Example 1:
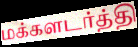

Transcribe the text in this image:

மக்களடர்த்தி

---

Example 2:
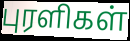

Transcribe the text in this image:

புரளிகள்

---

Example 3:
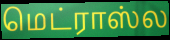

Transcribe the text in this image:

மெட்ராஸ்ல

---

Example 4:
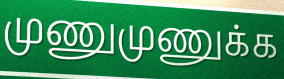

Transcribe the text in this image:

முணுமுணுக்க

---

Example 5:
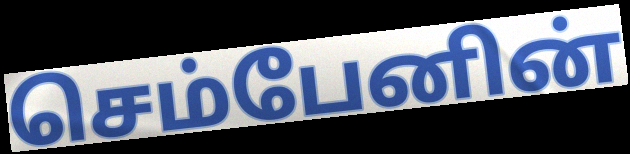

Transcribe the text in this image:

செம்பேனின்